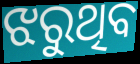
ଝରୁଥିବ